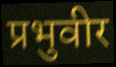
प्रभुवीर